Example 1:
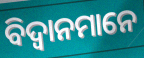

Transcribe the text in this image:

ବିଦ୍ଵାନମାନେ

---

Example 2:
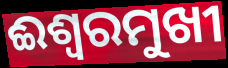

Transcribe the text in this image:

ଈଶ୍ୱରମୁଖୀ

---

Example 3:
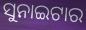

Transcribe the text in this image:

ସୁନାଇଟାର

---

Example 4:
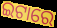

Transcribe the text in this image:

ଇଟାରେ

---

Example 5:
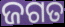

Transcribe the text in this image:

ଜଗତ